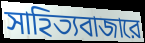
সাহিত্যবাজারে